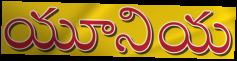
యూనియ